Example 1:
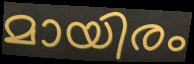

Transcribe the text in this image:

മായിരം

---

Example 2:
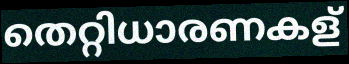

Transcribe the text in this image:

തെറ്റിധാരണകള്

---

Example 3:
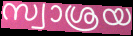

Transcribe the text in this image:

സ്വാശ്രയ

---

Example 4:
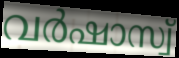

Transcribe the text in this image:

വർഷാസ്വ്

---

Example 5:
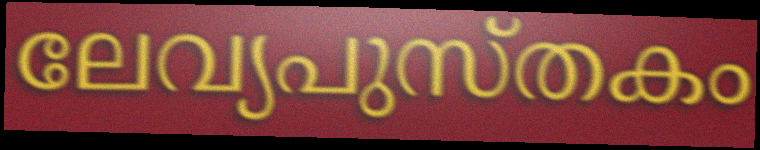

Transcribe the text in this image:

ലേവ്യപുസ്തകം